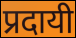
प्रदायी